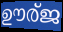
ഊര്ജ